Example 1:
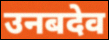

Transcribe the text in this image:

उनबदेव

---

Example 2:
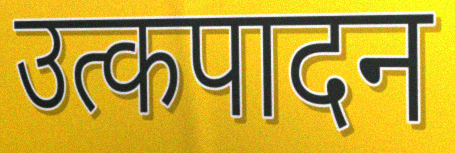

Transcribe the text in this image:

उत्कपादन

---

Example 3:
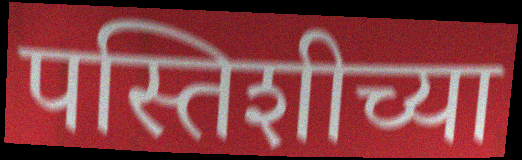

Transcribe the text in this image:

पस्तिशीच्या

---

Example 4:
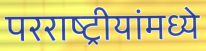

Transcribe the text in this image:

परराष्ट्रीयांमध्ये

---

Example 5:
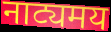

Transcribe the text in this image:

नाट्यमय